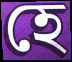
হে